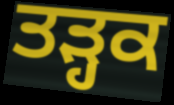
ਤੜ੍ਹਕ